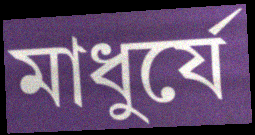
মাধুর্যে